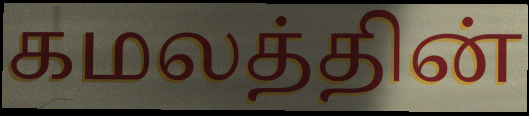
கமலத்தின்